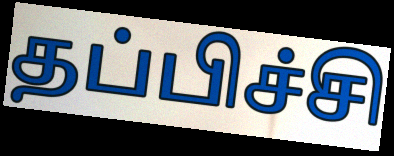
தப்பிச்சி